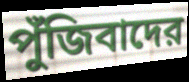
পুঁজিবাদের